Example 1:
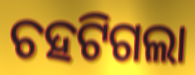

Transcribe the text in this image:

ଚହଟିଗଲା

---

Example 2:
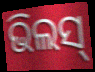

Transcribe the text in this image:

ଭିଲସ୍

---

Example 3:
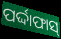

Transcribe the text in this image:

ପର୍ଦ୍ଦାଫାସ୍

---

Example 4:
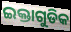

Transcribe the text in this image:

ଇକ୍ତାଗୁଡିକ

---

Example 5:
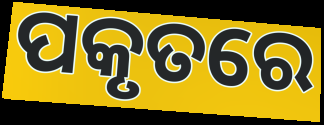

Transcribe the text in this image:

ପକୃତରେ